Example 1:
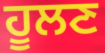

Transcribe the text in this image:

ਹੂਲਣ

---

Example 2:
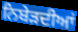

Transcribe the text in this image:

ਨਿਬੇੜਦੀਆਂ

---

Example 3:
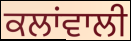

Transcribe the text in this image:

ਕਲਾਂਵਾਲੀ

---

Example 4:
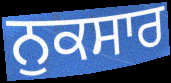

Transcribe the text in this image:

ਨੁਕਸਾਰ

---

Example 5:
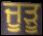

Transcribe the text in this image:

ਜੂੜੂ